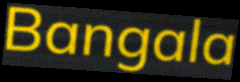
Bangala